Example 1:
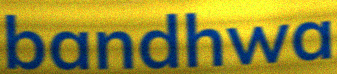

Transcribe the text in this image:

bandhwa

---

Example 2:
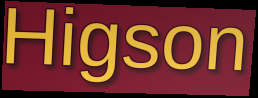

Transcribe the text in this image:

Higson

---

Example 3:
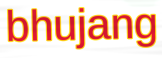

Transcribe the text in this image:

bhujang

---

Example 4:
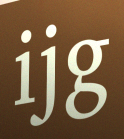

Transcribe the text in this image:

ijg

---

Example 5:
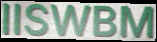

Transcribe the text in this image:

IISWBM